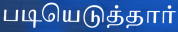
படியெடுத்தார்